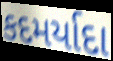
કદમર્યાદા